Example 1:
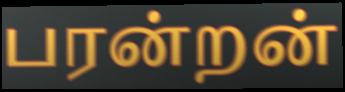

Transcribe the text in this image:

பரன்றன்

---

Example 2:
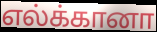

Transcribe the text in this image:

எல்க்கானா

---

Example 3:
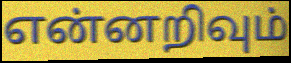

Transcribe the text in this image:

என்னறிவும்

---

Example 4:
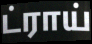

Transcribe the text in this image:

ட்ராய்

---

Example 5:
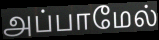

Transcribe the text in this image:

அப்பாமேல்